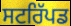
ਸਟਰਿੱਪਡ